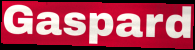
Gaspard